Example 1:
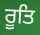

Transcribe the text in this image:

ਰੂਤਿ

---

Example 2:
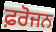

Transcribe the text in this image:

ਫ਼ਰੋਜਨ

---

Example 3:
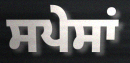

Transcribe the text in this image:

ਸਪੇਸਾਂ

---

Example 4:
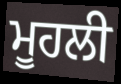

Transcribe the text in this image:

ਮੂਹਲੀ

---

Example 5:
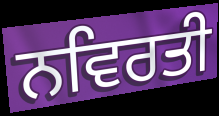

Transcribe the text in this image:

ਨਵਿਰਤੀ